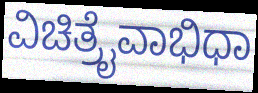
ವಿಚಿತ್ರೈವಾಭಿಧಾ